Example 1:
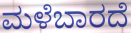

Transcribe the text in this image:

ಮಳೆಬಾರದೆ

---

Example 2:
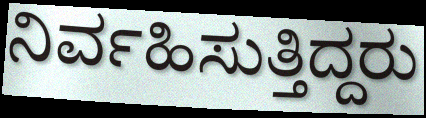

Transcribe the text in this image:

ನಿರ್ವಹಿಸುತ್ತಿದ್ದರು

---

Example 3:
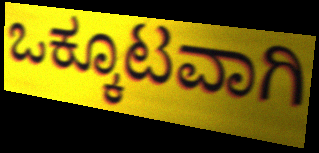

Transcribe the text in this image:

ಒಕ್ಕೂಟವಾಗಿ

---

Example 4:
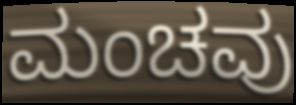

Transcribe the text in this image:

ಮಂಚವು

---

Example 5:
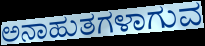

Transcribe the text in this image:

ಅನಾಹುತಗಳಾಗುವ